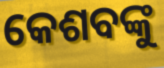
କେଶବଙ୍କୁ